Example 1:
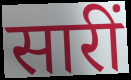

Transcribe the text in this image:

सारीं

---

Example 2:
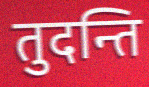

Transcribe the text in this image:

तुदन्ति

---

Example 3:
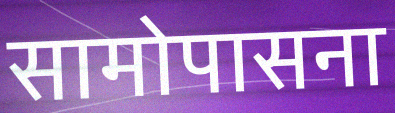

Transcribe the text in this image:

सामोपासना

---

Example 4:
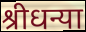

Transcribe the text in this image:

श्रीधन्या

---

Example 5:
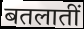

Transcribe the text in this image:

बतलातीं